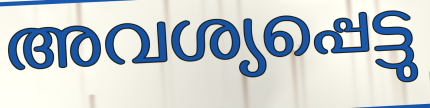
അവശ്യപ്പെട്ടു